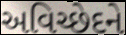
અવિચ્છેદને